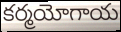
కర్మయోగాయ